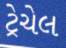
ટ્રેચેલ